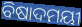
ବିଷାଦମୟୀ